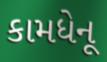
કામધેનૂ